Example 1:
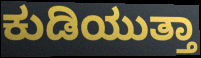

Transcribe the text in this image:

ಕುಡಿಯುತ್ತಾ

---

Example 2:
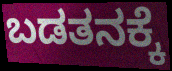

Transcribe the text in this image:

ಬಡತನಕ್ಕೆ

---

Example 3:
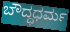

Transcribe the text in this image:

ಬೌದ್ಧಧರ್ಮ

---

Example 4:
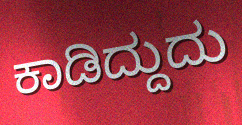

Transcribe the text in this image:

ಕಾಡಿದ್ದುದು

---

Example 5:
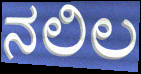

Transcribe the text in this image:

ನಲಿಲ